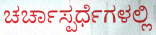
ಚರ್ಚಾಸ್ಪರ್ಧೆಗಳಲ್ಲಿ